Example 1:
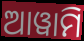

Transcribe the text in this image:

ଆୱାମି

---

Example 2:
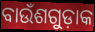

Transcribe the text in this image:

ବାଉଁଶଗୁଡ଼ାକ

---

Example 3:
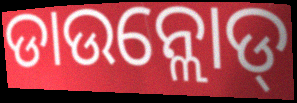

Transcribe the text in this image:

ଡାଉନ୍ଲୋଡ୍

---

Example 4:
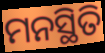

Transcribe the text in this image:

ମନସ୍ଥିତି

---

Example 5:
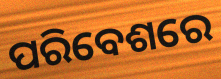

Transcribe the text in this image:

ପରିବେଶରେ